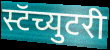
स्टॅच्युटरी